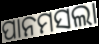
ପାନମସଲା